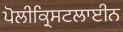
ਪੋਲੀਕ੍ਰਿਸਟਲਾਈਨ